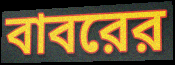
বাবরের